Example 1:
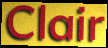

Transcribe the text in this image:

Clair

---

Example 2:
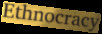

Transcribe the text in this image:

Ethnocracy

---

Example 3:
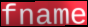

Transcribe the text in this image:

fname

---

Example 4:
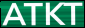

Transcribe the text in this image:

ATKT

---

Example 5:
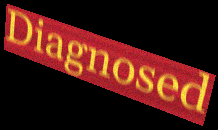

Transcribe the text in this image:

Diagnosed